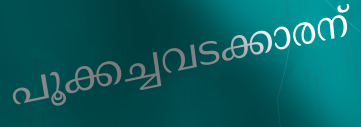
പൂക്കച്ചവടക്കാരന്